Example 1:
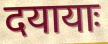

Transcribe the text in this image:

दयायाः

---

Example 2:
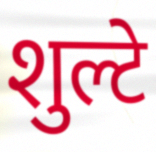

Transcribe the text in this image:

शुल्टे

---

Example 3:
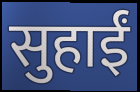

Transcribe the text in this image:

सुहाईं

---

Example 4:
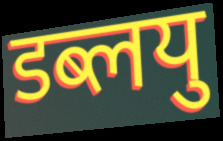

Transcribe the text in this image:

डब्लयु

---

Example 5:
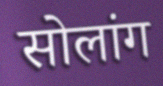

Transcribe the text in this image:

सोलांग